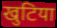
खुटिया